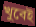
খুবেই